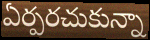
ఏర్పరచుకున్నా